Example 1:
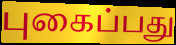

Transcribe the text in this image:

புகைப்பது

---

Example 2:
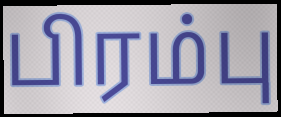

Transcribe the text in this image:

பிரம்பு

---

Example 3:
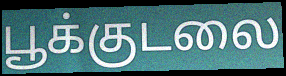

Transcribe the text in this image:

பூக்குடலை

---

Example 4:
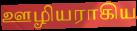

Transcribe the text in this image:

ஊழியராகிய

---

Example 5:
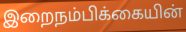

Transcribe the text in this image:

இறைநம்பிக்கையின்